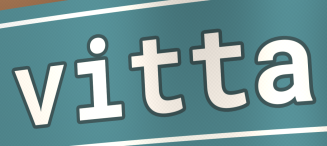
vitta